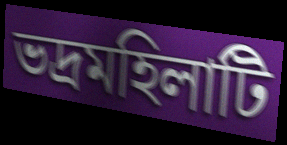
ভদ্রমহিলাটি